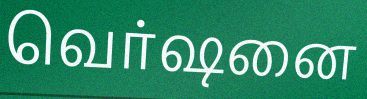
வெர்ஷனை